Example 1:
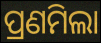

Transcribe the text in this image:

ପ୍ରଣମିଲା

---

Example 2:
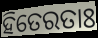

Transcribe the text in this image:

ହିତେରତାଃ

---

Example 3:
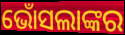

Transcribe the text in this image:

ଭୋଁସଲାଙ୍କର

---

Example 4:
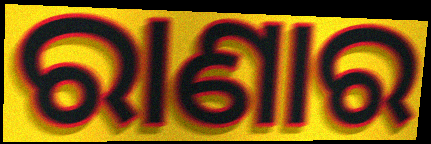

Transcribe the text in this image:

ରାଣାର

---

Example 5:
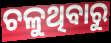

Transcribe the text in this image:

ଚଳୁଥିବାରୁ